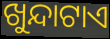
ଖୁନ୍ଦାଟାଏ